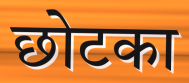
छोटका